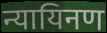
न्यायिनण